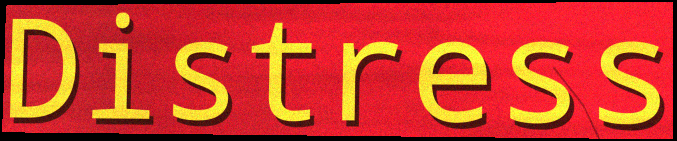
Distress